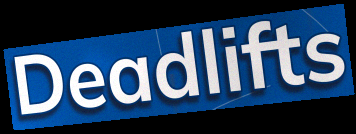
Deadlifts